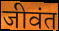
जीवंत